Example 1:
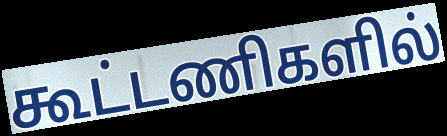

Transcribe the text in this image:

கூட்டணிகளில்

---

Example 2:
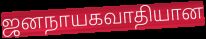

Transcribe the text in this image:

ஜனநாயகவாதியான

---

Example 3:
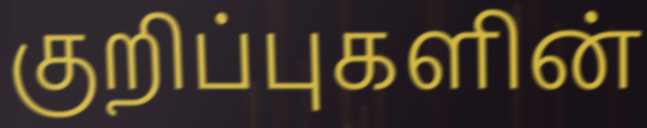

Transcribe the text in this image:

குறிப்புகளின்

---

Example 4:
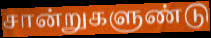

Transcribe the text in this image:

சான்றுகளுண்டு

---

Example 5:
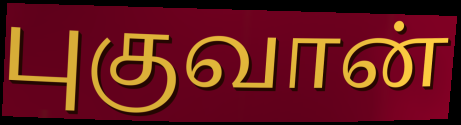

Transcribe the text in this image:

புகுவான்